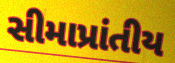
સીમાપ્રાંતીય